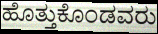
ಹೊತ್ತುಕೊಂಡವರು